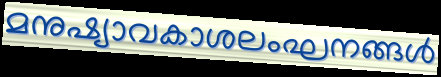
മനുഷ്യാവകാശലംഘനങ്ങൾ